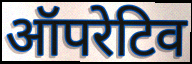
ऑपरेटिव